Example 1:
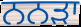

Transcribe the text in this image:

ਨਨੜਾ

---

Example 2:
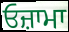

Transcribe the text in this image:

ਓਜ਼ਾਮਾ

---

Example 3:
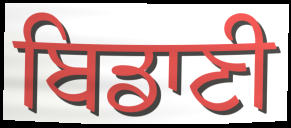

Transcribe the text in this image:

ਬਿਡਾਣੀ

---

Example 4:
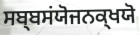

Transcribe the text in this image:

ਸਬ੍ਬਸਂਯੋਜਨਕ੍ਖਯੋ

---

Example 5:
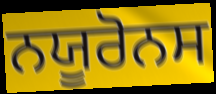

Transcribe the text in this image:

ਨਯੂਰੋਨਸ